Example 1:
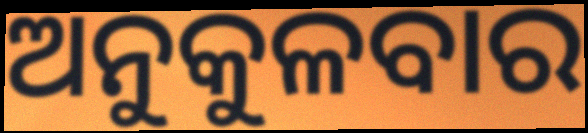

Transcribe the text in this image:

ଅନୁକୁଳବାର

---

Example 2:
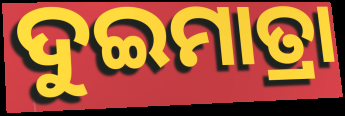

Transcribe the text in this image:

ଦୁଇମାତ୍ରା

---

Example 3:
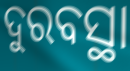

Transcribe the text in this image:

ଦୁରବସ୍ଥା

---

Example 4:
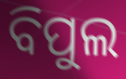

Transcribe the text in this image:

ବିପୁଲ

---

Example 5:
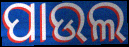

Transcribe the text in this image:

ପାଉଲ